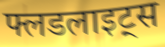
फ्लडलाइट्स